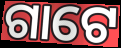
ଗାଟେ